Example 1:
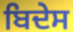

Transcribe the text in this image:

ਬਿਦੇਸ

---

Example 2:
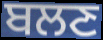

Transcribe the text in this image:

ਬਲਣ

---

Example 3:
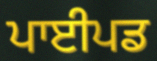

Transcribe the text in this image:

ਪਾਈਪਡ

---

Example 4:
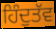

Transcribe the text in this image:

ਹਿੰਦੁਤੱਵ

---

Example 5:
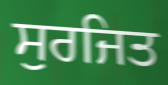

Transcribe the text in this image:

ਸੁਰਜਿਤ